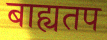
बाह्यतप